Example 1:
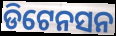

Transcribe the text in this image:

ଡିଟେନସନ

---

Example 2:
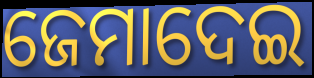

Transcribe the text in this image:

ଜେମାଦେଇ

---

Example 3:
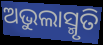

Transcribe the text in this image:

ଅଭୁଲାସ୍ମୃତି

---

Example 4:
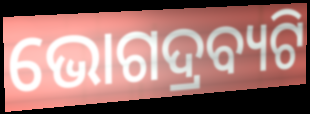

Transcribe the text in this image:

ଭୋଗଦ୍ରବ୍ୟଟି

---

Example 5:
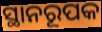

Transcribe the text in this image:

ସ୍ଥାନରୂପକ